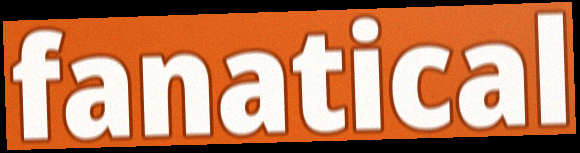
fanatical